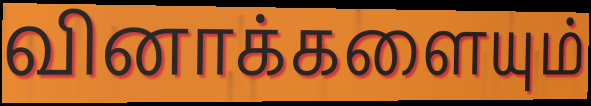
வினாக்களையும்